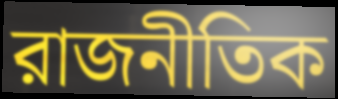
রাজনীতিক